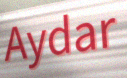
Aydar